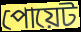
পোয়েট